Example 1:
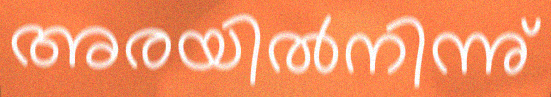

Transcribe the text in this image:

അരയിൽനിന്നു്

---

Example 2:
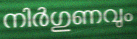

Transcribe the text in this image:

നിർഗുണവും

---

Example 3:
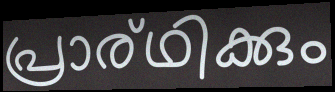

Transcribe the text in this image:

പ്രാര്ഥിക്കും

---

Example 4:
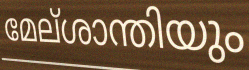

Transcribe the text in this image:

മേല്ശാന്തിയും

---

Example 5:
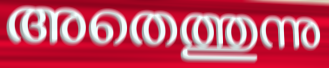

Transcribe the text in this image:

അതെത്തുന്നു